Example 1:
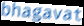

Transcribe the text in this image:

bhagavat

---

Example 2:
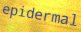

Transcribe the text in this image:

epidermal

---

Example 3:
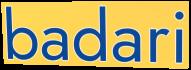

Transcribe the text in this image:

badari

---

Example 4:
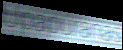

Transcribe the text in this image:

Upapuranas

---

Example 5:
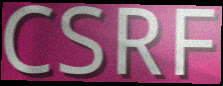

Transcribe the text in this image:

CSRF